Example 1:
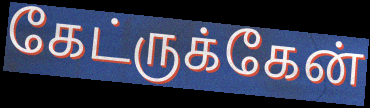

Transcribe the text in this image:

கேட்ருக்கேன்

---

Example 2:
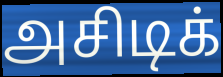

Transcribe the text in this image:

அசிடிக்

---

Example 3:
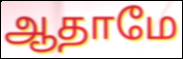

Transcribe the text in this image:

ஆதாமே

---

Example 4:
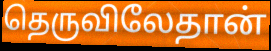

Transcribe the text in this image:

தெருவிலேதான்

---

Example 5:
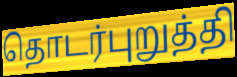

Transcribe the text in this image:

தொடர்புறுத்தி